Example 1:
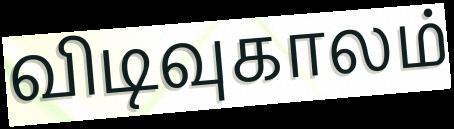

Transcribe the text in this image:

விடிவுகாலம்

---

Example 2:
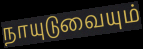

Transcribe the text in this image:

நாயுடுவையும்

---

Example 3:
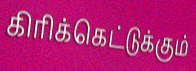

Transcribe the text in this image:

கிரிக்கெட்டுக்கும்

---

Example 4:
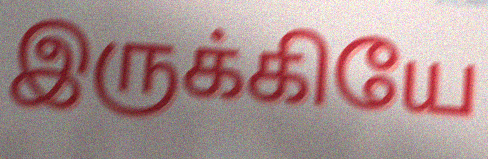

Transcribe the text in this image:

இருக்கியே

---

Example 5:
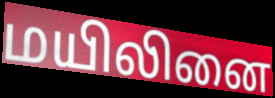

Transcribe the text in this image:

மயிலினை